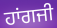
ਹਾਂਗਜੀ